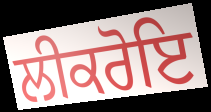
ਲੀਕਰੋਇ